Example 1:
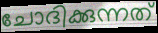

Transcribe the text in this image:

ചോദിക്കുന്നത്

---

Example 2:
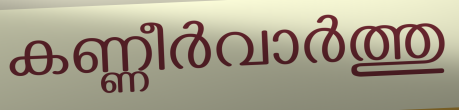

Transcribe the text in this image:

കണ്ണീർവാർത്തു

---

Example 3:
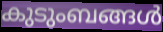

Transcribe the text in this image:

കുടുംബങ്ങൾ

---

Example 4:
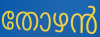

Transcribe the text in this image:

തോഴൻ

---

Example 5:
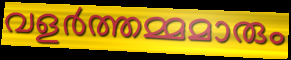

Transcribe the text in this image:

വളർത്തമ്മമാരും